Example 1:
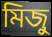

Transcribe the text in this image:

মিজু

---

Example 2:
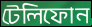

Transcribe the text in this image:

টেলিফোন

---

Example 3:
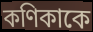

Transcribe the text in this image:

কণিকাকে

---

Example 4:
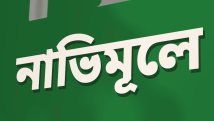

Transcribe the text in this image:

নাভিমূলে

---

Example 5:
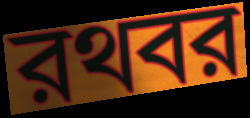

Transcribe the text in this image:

রথবর